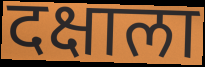
दक्षाला